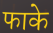
फाके